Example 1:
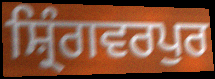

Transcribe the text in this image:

ਸ਼੍ਰਿੰਗਵਰਪੁਰ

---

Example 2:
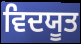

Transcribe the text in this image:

ਵਿਦਯੂਤ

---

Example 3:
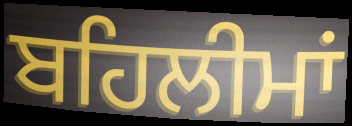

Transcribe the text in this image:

ਬਹਿਲੀਮਾਂ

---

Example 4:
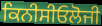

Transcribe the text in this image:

ਕਿਨੀਸੀਓਲੋਜੀ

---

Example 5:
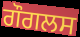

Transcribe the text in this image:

ਗੌਗਲਸ